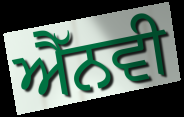
ਐੱਨਵੀ